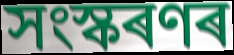
সংস্কৰণৰ